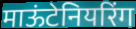
माऊंटेनियरिंग